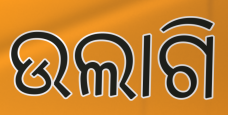
ଉଲାଗି